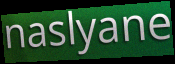
naslyane